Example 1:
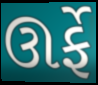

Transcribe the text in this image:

ઊર્ફે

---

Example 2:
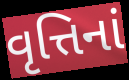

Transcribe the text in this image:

વૃત્તિનાં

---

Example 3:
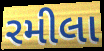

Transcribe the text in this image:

રમીલા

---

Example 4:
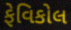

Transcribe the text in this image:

ફેવિકોલ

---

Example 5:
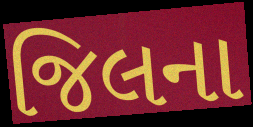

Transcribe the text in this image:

જિલના